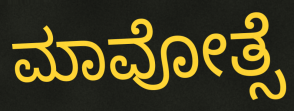
ಮಾವೋತ್ಸೆ